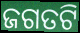
ଜଗତଟି